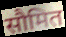
सौमित